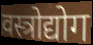
वस्त्रोद्योग